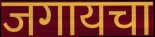
जगायचा